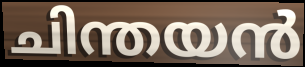
ചിന്തയൻ